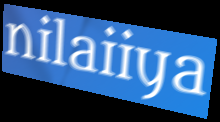
nilaiiya